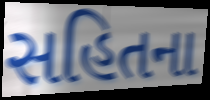
સહિતના